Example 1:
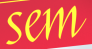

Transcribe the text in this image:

sem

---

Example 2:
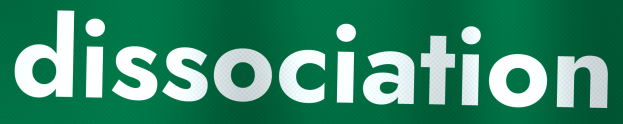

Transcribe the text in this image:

dissociation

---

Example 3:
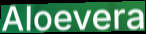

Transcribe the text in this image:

Aloevera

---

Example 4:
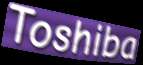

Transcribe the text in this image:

Toshiba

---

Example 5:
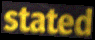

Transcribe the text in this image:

stated